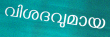
വിശദവുമായ